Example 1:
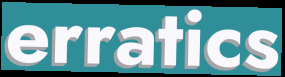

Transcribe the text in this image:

erratics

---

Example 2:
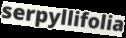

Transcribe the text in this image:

serpyllifolia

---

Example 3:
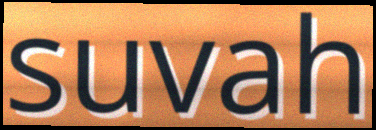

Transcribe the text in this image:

suvah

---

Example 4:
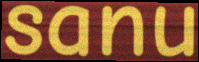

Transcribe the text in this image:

sanu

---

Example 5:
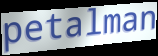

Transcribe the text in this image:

petalman